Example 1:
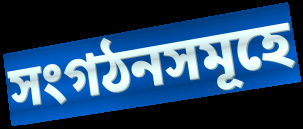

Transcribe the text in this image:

সংগঠনসমূহে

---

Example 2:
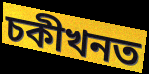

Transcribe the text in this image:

চকীখনত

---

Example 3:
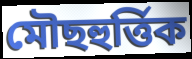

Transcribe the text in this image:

মৌছহুৰ্ত্তিক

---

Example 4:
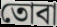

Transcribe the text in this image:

তোবা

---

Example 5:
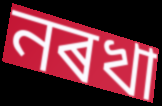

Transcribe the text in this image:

নৰখা